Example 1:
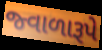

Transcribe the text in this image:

જ્વાળારૂપે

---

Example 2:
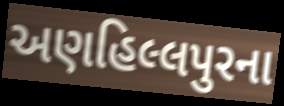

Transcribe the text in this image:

અણહિલ્લપુરના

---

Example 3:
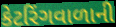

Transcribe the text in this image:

કેટરિંગવાળાની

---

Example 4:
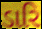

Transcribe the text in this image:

ડારિ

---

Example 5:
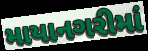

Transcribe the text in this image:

માયાનગરીમાં